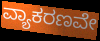
ವ್ಯಾಕರಣವೇ